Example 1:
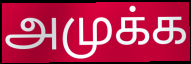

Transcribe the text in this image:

அமுக்க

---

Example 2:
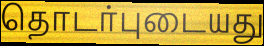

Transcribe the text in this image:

தொடர்புடையது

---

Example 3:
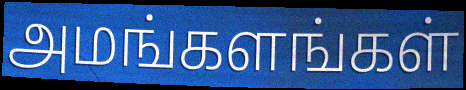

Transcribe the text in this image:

அமங்களங்கள்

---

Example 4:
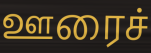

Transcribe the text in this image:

ஊரைச்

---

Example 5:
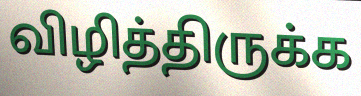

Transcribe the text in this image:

விழித்திருக்க